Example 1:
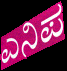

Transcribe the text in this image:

ಎನಿಪ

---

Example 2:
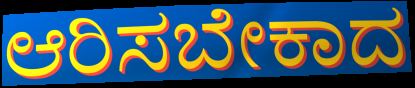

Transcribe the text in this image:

ಆರಿಸಬೇಕಾದ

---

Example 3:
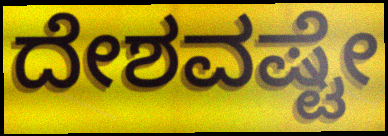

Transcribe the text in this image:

ದೇಶವಷ್ಟೇ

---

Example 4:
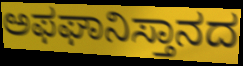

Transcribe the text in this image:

ಅಫಘಾನಿಸ್ತಾನದ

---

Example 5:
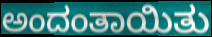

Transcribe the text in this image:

ಅಂದಂತಾಯಿತು